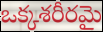
ఒక్కశరీరమై